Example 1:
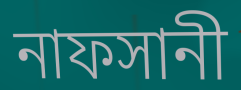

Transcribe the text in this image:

নাফসানী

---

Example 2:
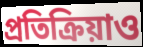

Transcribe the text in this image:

প্রতিক্রিয়াও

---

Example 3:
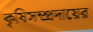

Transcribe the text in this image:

কৃষিসম্প্রদায়ের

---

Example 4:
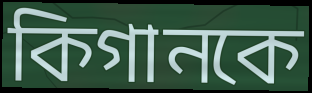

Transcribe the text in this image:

কিগানকে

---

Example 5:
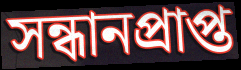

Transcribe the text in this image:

সন্ধানপ্রাপ্ত